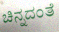
ಚಿನ್ನದಂತೆ